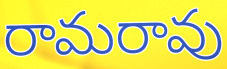
రామరావు